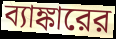
ব্যাঙ্কারের